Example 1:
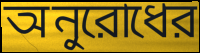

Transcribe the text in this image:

অনুরোধের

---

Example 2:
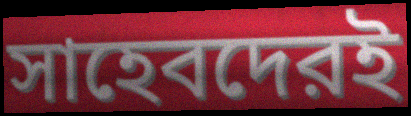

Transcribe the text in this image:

সাহেবদেরই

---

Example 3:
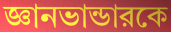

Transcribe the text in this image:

জ্ঞানভান্ডারকে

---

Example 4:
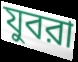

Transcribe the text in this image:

যুবরা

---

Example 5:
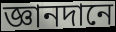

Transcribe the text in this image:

জ্ঞানদানে